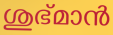
ശുഭ്മാൻ